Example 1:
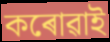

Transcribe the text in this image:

কৰোৱাই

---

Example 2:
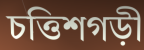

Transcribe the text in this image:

চত্তিশগড়ী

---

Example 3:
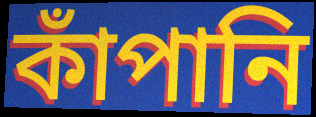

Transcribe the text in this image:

কাঁপানি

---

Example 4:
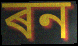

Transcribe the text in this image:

ৰন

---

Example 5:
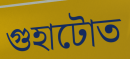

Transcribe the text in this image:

গুহাটোত